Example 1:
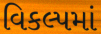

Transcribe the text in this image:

વિકલ્પમાં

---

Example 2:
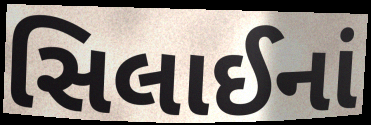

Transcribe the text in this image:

સિલાઈનાં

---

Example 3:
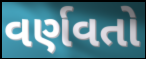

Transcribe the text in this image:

વર્ણવતો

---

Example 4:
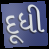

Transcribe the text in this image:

દૂધી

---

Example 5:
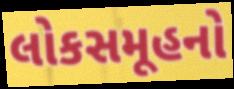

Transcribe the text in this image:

લોકસમૂહનો